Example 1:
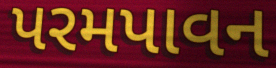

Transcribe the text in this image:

પરમપાવન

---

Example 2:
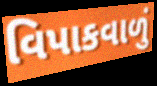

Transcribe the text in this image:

વિપાકવાળું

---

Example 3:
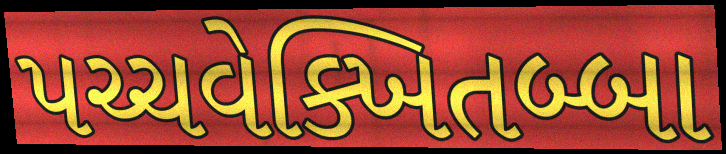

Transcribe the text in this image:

પચ્ચવેક્ખિતબ્બા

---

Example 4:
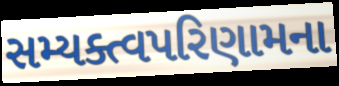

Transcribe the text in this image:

સમ્યક્ત્વપરિણામના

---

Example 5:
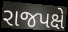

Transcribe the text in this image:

રાજપક્ષે